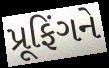
પ્રૂફિંગને